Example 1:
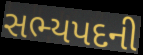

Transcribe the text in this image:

સભ્યપદની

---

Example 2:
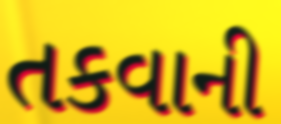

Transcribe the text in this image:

તકવાની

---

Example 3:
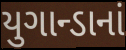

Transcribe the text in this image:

યુગાન્ડાનાં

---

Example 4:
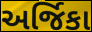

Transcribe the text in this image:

અર્જિકા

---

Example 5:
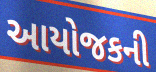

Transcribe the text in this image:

આયોજકની